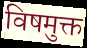
विषमुक्त